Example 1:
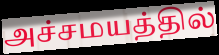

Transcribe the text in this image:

அச்சமயத்தில்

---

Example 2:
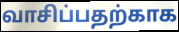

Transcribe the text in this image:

வாசிப்பதற்காக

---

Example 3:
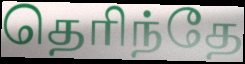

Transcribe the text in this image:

தெரிந்தே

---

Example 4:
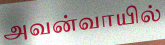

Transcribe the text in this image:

அவன்வாயில்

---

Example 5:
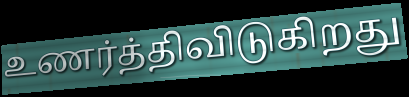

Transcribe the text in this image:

உணர்த்திவிடுகிறது